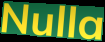
Nulla